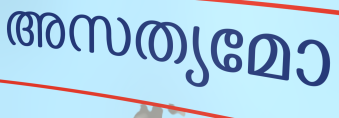
അസത്യമോ